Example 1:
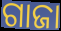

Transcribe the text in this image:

ଗାଜା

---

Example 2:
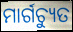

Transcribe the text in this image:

ମାର୍ଗଚ୍ୟୁତ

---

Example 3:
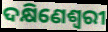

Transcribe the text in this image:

ଦକ୍ଷିଣେଶ୍ଵରୀ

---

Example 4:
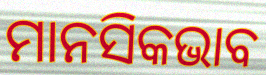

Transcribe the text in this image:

ମାନସିକଭାବ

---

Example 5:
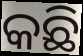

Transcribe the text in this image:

କଛି